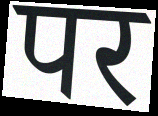
पर